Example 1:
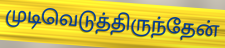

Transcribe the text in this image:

முடிவெடுத்திருந்தேன்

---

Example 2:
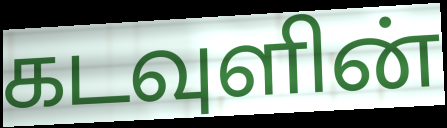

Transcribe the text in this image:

கடவுளின்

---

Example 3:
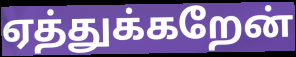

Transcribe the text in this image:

ஏத்துக்கறேன்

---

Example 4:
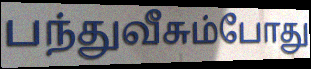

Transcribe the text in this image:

பந்துவீசும்போது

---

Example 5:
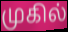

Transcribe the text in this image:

முகில்